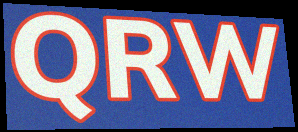
QRW